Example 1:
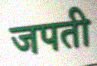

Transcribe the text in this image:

जपती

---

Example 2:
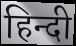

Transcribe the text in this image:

हिन्दी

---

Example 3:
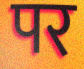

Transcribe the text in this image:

पर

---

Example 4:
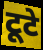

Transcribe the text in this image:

टूटे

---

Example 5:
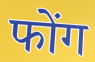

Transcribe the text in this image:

फोंग